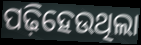
ପଢ଼ିହେଉଥିଲା